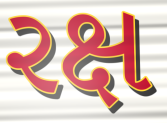
રક્ષ